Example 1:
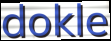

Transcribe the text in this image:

dokle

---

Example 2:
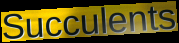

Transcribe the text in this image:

Succulents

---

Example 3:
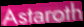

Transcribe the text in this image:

Astaroth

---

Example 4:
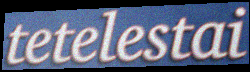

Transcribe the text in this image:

tetelestai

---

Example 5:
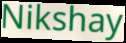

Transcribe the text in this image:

Nikshay